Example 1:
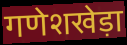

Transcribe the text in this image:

गणेशखेड़ा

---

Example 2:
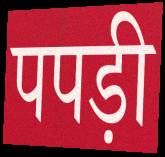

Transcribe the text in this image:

पपड़ी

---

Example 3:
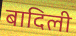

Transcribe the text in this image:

बादिली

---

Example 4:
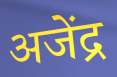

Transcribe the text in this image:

अजेंद्र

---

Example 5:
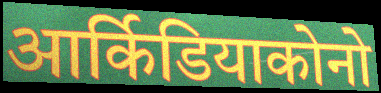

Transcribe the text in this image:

आर्किडियाकोनो